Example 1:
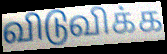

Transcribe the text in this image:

விடுவிக்க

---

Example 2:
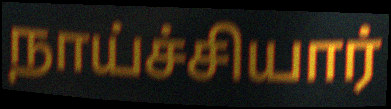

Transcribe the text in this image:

நாய்ச்சியார்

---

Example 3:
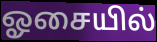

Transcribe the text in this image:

ஓசையில்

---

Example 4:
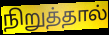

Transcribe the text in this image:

நிறுத்தால்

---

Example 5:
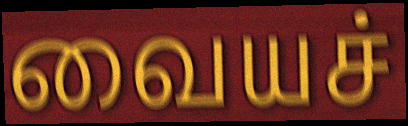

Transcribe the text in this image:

வையச்